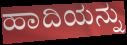
ಹಾದಿಯನ್ನು